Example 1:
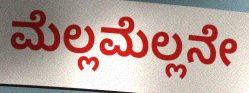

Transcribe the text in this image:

ಮೆಲ್ಲಮೆಲ್ಲನೇ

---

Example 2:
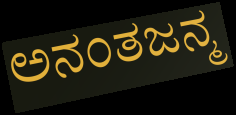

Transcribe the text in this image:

ಅನಂತಜನ್ಮ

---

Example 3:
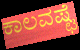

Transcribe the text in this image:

ಕಾಲವಷ್ಟೆ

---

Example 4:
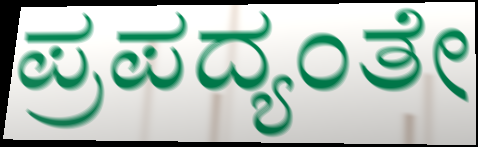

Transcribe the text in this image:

ಪ್ರಪದ್ಯಂತೇ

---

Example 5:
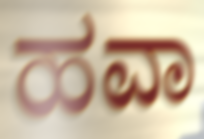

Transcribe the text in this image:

ಹವಾ